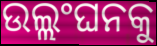
ଉଲ୍ଲଂଘନକୁ